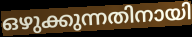
ഒഴുക്കുന്നതിനായി